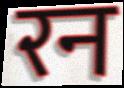
रन